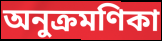
অনুক্রমণিকা